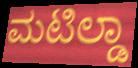
ಮಟಿಲ್ಡಾ